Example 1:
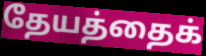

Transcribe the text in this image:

தேயத்தைக்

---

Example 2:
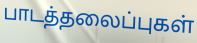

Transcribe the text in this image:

பாடத்தலைப்புகள்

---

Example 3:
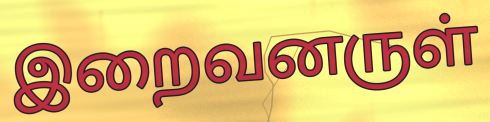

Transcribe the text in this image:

இறைவனருள்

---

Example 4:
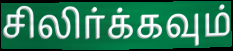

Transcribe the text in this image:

சிலிர்க்கவும்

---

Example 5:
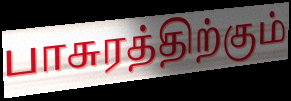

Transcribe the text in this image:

பாசுரத்திற்கும்